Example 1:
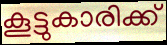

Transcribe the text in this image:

കൂട്ടുകാരിക്ക്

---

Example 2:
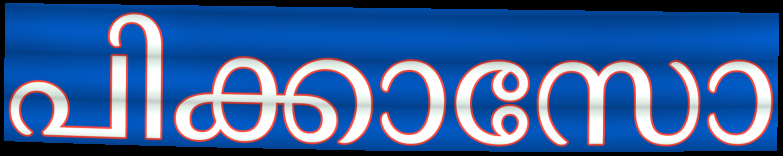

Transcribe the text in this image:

പിക്കാസോ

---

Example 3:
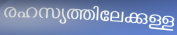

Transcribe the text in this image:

രഹസ്യത്തിലേക്കുള്ള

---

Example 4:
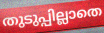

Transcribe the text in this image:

തുടുപ്പില്ലാതെ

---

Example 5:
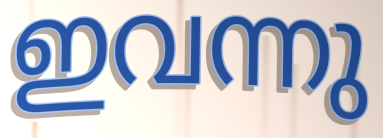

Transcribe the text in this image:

ഇവന്നു